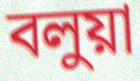
বলুয়া